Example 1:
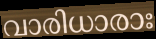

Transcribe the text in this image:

വാരിധാരാഃ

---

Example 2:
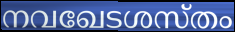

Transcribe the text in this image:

നവഖേടശസ്തം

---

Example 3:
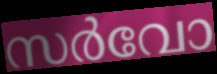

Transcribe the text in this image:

സർവോ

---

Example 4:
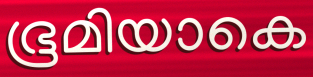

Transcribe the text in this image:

ഭൂമിയാകെ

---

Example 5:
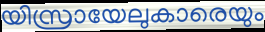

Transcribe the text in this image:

യിസ്രായേലുകാരെയും